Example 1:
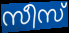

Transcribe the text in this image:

സീസ്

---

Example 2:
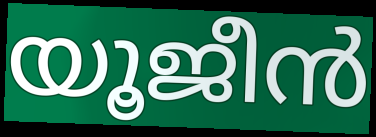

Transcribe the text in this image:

യൂജീൻ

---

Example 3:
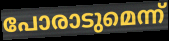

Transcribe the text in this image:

പോരാടുമെന്ന്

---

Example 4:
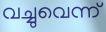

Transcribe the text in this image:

വച്ചുവെന്ന്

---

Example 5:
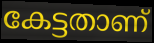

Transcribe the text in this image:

കേട്ടതാണ്